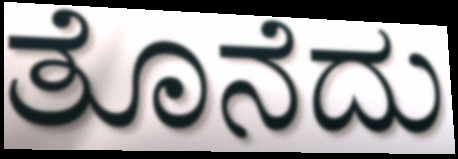
ತೊನೆದು